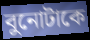
বুনোটাকে